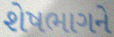
શેષભાગને